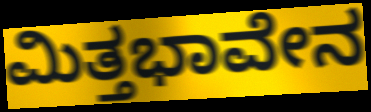
ಮಿತ್ತಭಾವೇನ